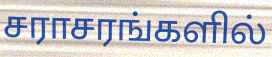
சராசரங்களில்